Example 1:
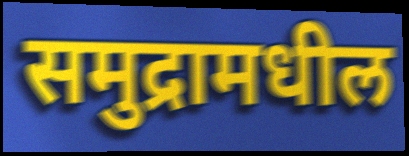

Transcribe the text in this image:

समुद्रामधील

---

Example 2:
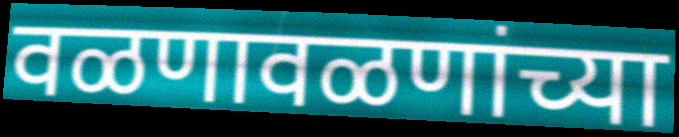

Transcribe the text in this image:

वळणावळणांच्या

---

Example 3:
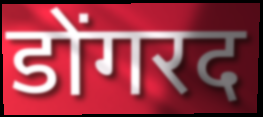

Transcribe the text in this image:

डोंगरद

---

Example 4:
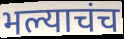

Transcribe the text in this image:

भल्याचंच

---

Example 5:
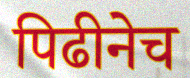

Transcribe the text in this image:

पिढीनेच